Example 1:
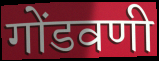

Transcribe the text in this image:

गोंडवणी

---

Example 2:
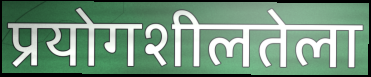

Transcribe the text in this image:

प्रयोगशीलतेला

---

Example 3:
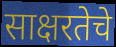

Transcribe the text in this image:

साक्षरतेचे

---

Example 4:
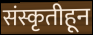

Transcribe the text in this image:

संस्कृतीहून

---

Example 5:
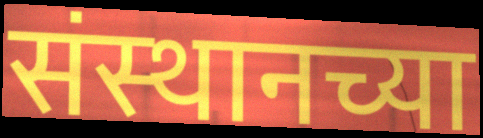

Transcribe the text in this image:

संस्थानच्या